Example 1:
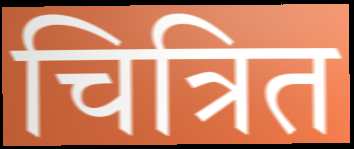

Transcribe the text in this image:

चित्रित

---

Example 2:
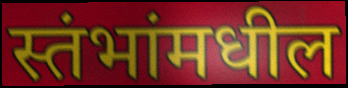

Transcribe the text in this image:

स्तंभांमधील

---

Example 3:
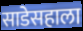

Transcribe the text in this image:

साडेसहाला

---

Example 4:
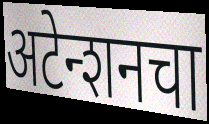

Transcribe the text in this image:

अटेन्शनचा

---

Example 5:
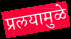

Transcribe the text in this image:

प्रलयामुळे